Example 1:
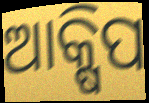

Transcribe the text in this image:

ଆକ୍ଷିପ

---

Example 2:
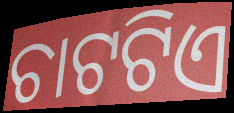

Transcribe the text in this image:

ଚାଟଟିଏ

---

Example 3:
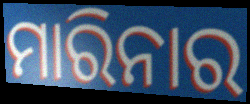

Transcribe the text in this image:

ମାରିନାର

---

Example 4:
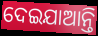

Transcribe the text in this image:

ଦେଇଯାଆନ୍ତି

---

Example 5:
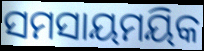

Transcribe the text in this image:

ସମସାୟମୟିକ